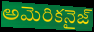
అమెరికనైజ్